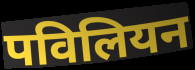
पविलियन